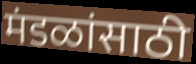
मंडळांसाठी